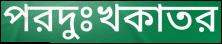
পরদুঃখকাতর